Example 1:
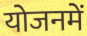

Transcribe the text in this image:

योजनमें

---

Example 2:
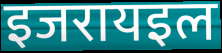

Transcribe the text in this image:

इजरायइल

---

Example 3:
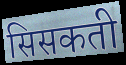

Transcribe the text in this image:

सिसकती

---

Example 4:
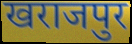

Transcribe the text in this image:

खराजपुर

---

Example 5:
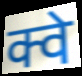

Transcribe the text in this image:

क्वे